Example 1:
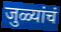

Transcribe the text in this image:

जुळ्यांचं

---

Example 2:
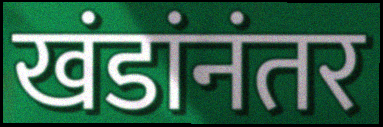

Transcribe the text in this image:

खंडांनंतर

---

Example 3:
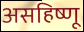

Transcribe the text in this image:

असहिष्णू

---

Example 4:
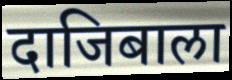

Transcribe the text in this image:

दाजिबाला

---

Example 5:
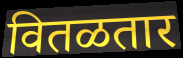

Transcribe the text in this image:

वितळतार